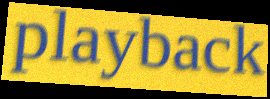
playback